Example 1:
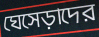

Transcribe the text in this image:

ঘেসেড়াদের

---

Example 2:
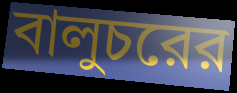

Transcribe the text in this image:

বালুচরের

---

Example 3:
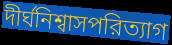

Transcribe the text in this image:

দীর্ঘনিশ্বাসপরিত্যাগ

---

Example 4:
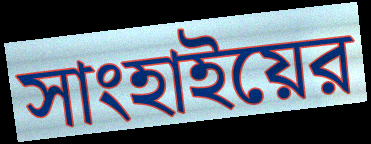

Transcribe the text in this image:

সাংহাইয়ের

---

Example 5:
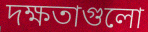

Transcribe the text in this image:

দক্ষতাগুলো